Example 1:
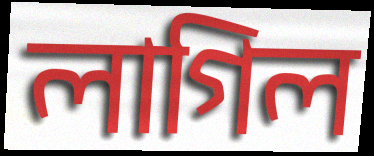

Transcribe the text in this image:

লাগিল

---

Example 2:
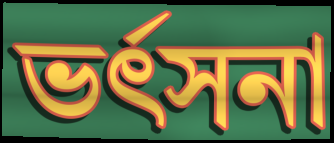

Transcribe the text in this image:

ভৰ্ৎসনা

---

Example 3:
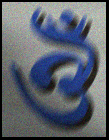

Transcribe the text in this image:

ঔঁ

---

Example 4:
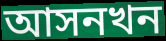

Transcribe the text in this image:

আসনখন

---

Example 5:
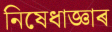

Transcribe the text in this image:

নিষেধাজ্ঞাৰ